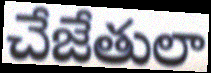
చేజేతులా